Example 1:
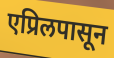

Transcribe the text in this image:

एप्रिलपासून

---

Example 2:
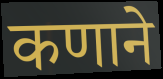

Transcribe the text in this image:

कणाने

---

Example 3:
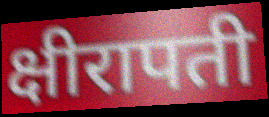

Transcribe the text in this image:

क्षीरापती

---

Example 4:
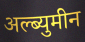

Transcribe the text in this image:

अल्ब्युमीन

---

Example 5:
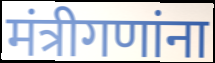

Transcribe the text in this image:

मंत्रीगणांना